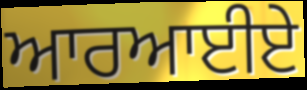
ਆਰਆਈਏ